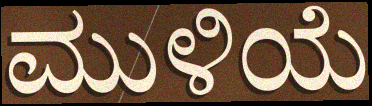
ಮುಳಿಯೆ